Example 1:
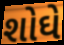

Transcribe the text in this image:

શોઘે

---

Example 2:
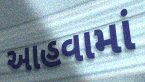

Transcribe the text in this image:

આહવામાં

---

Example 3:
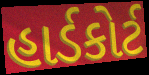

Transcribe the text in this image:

હાર્ડકોર્ટ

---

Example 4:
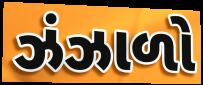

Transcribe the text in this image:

ઝંઝાળો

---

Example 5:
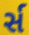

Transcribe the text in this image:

ર્સ